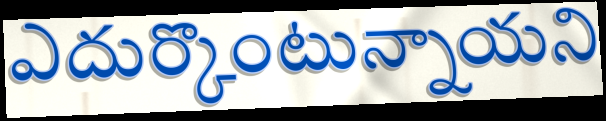
ఎదుర్కొంటున్నాయని